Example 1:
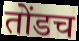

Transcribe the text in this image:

तोंडच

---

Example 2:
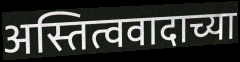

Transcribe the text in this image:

अस्तित्ववादाच्या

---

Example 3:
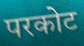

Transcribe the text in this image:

परकोट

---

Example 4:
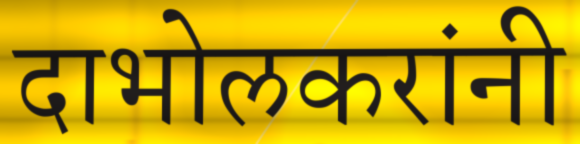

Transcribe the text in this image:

दाभोलकरांनी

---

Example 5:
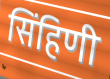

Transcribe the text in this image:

सिंहिणी